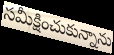
సమీక్షించుకున్నాను